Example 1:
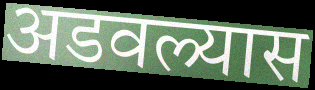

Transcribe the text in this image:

अडवल्यास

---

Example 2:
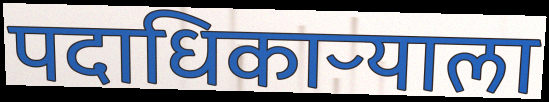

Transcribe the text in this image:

पदाधिकाऱ्याला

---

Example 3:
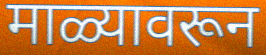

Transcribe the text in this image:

माळ्यावरून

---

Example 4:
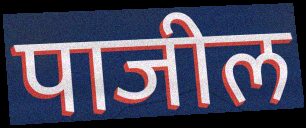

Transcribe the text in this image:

पाजील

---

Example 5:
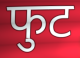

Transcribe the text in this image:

फुट